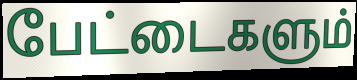
பேட்டைகளும்